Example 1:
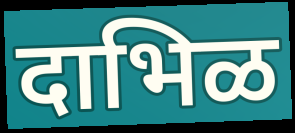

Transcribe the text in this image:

दाभिळ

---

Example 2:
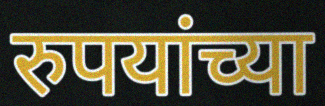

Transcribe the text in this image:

रुपयांच्या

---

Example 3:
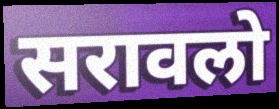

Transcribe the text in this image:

सरावलो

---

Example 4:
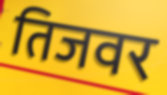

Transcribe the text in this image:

तिजवर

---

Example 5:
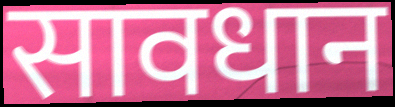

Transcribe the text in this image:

सावधान